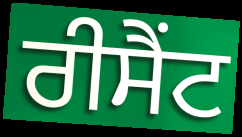
ਰੀਸੈਂਟ